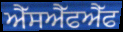
ਐੱਸਐੱਫਐੱਫ